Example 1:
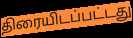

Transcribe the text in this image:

திரையிடப்பட்டது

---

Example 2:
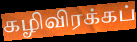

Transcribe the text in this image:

கழிவிரக்கப்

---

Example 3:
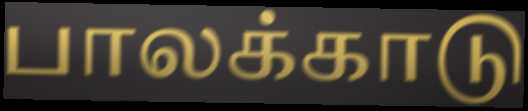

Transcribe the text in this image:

பாலக்காடு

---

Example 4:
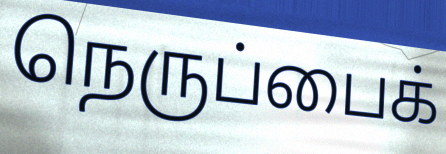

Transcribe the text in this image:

நெருப்பைக்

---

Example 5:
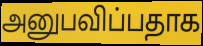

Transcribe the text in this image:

அனுபவிப்பதாக